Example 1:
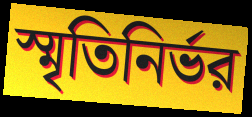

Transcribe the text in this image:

স্মৃতিনির্ভর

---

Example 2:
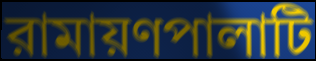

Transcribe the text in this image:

রামায়ণপালাটি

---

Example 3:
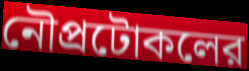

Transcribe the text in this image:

নৌপ্রটোকলের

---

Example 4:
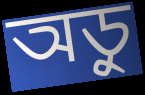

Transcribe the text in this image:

অডু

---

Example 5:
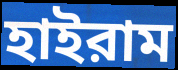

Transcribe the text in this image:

হাইরাম